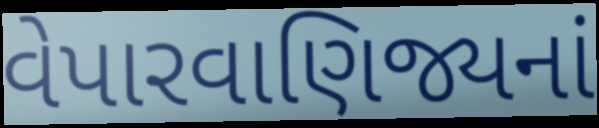
વેપારવાણિજ્યનાં